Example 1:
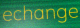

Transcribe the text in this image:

echange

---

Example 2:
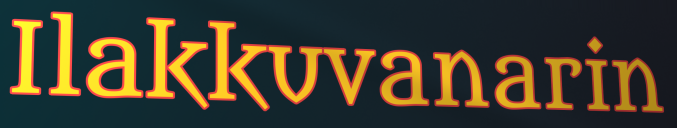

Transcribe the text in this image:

Ilakkuvanarin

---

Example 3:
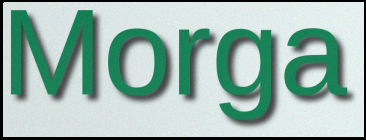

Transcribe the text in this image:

Morga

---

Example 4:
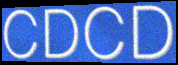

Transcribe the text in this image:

CDCD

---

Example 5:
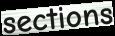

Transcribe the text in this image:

sections